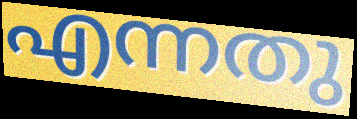
എന്നതു